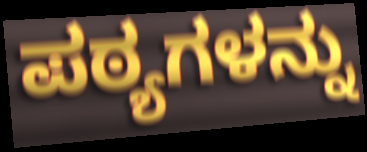
ಪಠ್ಯಗಳನ್ನು